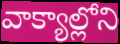
వాక్యాల్లోని